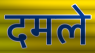
दमले